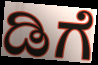
ಡಿಗೆ